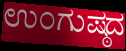
ಉಂಗುಷ್ಠದ